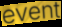
event